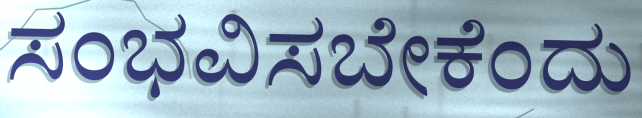
ಸಂಭವಿಸಬೇಕೆಂದು